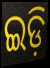
ଇଡ଼ି